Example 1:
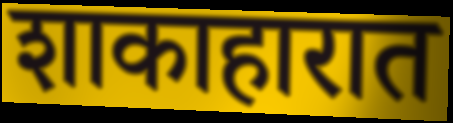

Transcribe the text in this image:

शाकाहारात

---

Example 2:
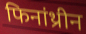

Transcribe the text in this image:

फिनांथ्रीन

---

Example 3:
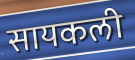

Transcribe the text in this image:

सायकली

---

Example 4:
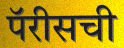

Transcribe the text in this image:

पॅरीसची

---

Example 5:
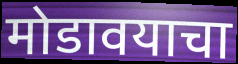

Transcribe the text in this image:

मोडावयाचा